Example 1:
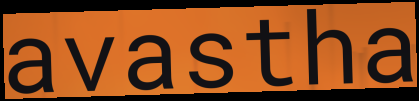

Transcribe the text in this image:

avastha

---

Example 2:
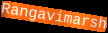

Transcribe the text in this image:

Rangavimarsh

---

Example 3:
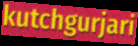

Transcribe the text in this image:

kutchgurjari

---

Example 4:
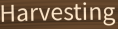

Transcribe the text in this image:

Harvesting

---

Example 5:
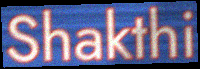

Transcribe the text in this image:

Shakthi